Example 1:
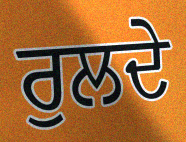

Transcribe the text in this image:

ਰੁਲਦੇ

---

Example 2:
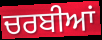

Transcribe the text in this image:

ਚਰਬੀਆਂ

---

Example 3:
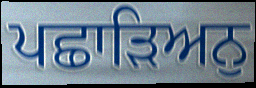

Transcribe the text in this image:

ਪਛਾੜਿਅਨੁ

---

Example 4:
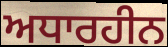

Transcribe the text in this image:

ਅਧਾਰਹੀਨ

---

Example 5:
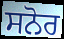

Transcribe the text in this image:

ਸਨੋਰ